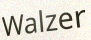
Walzer